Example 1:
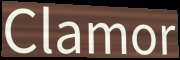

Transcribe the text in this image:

Clamor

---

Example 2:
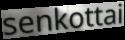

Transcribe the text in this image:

senkottai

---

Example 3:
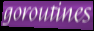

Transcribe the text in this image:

goroutines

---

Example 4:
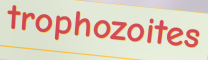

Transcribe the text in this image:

trophozoites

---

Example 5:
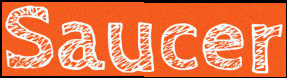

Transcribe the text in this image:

Saucer